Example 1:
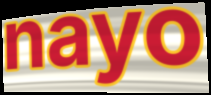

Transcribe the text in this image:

nayo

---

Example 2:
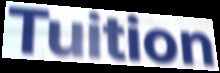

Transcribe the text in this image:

Tuition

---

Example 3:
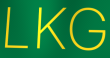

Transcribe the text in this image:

LKG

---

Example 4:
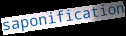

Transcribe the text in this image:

saponification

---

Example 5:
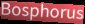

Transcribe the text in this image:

Bosphorus